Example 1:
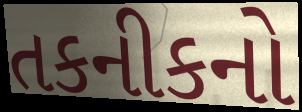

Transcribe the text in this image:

તકનીકનો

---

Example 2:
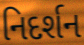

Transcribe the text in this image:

નિદર્શન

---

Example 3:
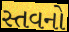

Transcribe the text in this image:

સ્તવનો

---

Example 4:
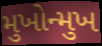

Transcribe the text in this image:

મુખોન્મુખ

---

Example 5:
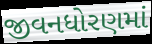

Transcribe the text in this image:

જીવનધોરણમાં